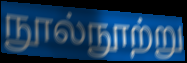
நூல்நூற்று